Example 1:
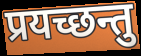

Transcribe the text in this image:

प्रयच्छन्तु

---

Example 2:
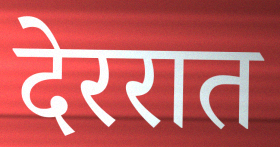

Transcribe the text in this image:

देररात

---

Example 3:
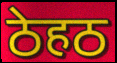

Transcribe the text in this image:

ठेहठ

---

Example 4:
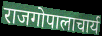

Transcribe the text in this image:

राजगोपालाचार्य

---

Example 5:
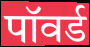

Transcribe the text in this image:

पॉवर्ड